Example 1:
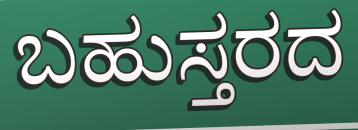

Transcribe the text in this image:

ಬಹುಸ್ತರದ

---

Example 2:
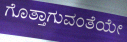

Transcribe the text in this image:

ಗೊತ್ತಾಗುವಂತೆಯೇ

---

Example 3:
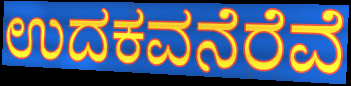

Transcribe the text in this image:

ಉದಕವನೆರೆವೆ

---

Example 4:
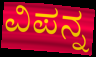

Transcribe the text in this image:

ವಿಪನ್ನ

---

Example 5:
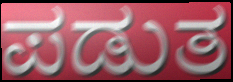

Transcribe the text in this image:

ಪಡುತ